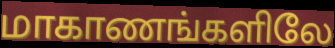
மாகாணங்களிலே